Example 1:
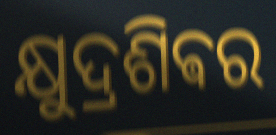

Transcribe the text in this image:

କ୍ଷୁଦ୍ରଶିଵର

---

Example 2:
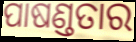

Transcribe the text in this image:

ପାଷଣ୍ଡତାର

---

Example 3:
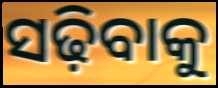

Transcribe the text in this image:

ସଢ଼ିବାକୁ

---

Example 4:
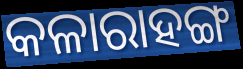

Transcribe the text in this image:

କଳାରାହଙ୍ଗ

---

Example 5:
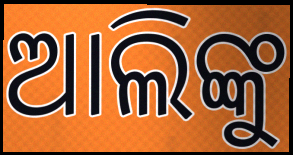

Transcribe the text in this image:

ଆଲିଙ୍କୁ